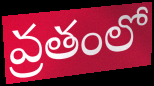
వ్రతంలో